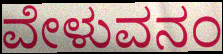
ವೇಳುವನಂ